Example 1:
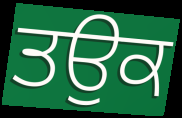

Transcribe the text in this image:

ਤਉਕ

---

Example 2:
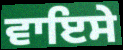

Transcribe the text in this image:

ਵਾਇਸੇ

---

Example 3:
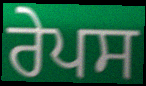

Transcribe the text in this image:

ਰੇਪਸ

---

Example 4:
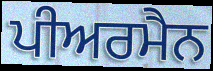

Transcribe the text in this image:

ਪੀਅਰਮੈਨ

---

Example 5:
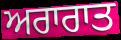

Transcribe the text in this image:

ਅਰਾਰਾਤ